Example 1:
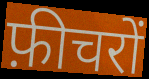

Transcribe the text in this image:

फ़ीचरों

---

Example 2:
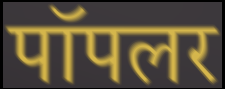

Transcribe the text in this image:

पॉपलर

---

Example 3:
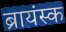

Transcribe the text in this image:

ब्रायंस्क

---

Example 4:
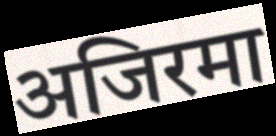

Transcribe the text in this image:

अजिरमा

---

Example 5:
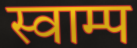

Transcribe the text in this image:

स्वाम्प